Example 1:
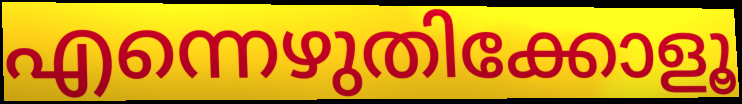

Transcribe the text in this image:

എന്നെഴുതിക്കോളൂ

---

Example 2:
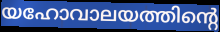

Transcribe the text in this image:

യഹോവാലയത്തിന്റെ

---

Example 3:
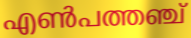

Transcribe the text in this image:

എൺപത്തഞ്ച്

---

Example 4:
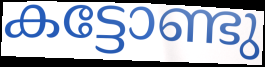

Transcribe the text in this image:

കട്ടോണ്ടു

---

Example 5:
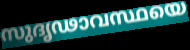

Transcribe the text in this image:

സുദൃഢാവസ്ഥയെ